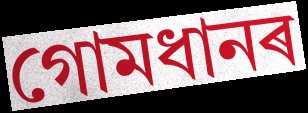
গোমধানৰ